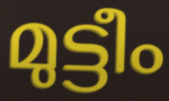
മുട്ടീം